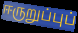
ஈருறுப்புப்